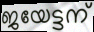
ജയേട്ടന്